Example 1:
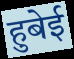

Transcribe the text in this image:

हुबेई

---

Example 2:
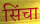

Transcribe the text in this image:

सिंचा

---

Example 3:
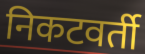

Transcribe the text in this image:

निकटवर्ती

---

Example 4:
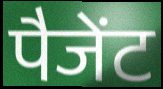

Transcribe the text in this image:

पैजेंट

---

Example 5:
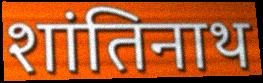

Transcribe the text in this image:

शांतिनाथ